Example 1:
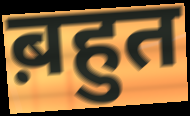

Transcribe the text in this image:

ब़हुत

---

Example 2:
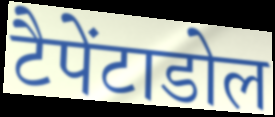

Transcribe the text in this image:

टैपेंटाडोल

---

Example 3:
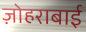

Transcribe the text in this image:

ज़ोहराबाई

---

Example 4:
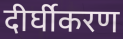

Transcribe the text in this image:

दीर्घीकरण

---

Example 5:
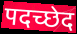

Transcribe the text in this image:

पदच्छेद